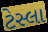
ટેસ્લા